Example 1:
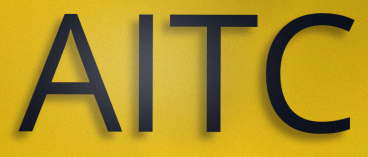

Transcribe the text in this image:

AITC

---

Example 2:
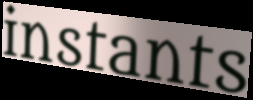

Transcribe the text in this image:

instants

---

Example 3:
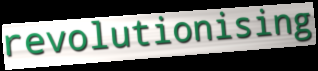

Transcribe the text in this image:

revolutionising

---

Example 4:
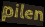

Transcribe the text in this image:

pilen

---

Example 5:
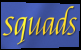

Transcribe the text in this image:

squads